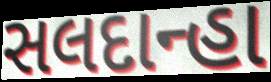
સલદાન્હા